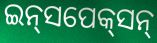
ଇନ୍‌ସପେକ୍‌ସନ୍